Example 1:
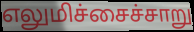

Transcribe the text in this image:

எலுமிச்சைச்சாறு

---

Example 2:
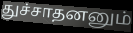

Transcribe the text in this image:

துச்சாதனனும்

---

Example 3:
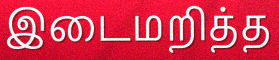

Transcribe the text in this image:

இடைமறித்த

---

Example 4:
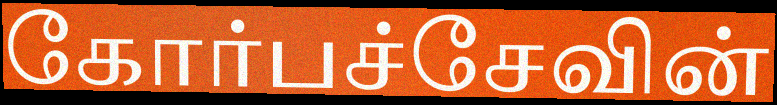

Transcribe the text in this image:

கோர்பச்சேவின்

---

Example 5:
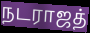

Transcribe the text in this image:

நடராஜத்